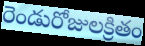
రెండురోజులక్రితం